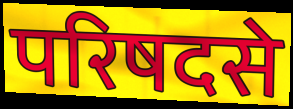
परिषदसे